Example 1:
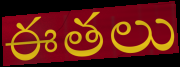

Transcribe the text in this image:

ఈతలు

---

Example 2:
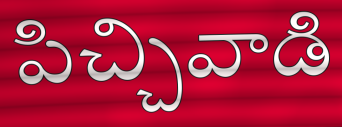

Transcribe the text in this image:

పిచ్చివాడి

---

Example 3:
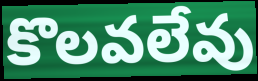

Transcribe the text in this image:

కొలవలేవు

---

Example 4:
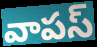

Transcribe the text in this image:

వాపస్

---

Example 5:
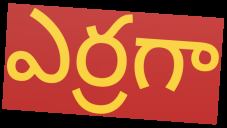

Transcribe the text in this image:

ఎర్రగా